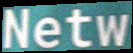
Netw